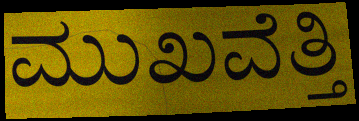
ಮುಖವೆತ್ತಿ